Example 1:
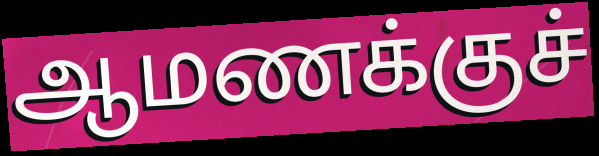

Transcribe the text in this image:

ஆமணக்குச்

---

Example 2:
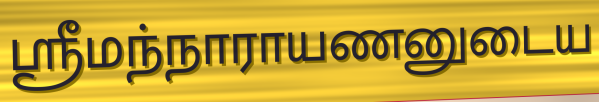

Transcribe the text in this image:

ஸ்ரீமந்நாராயணனுடைய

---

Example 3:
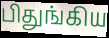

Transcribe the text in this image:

பிதுங்கிய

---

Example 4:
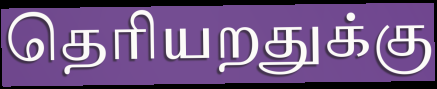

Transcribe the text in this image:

தெரியறதுக்கு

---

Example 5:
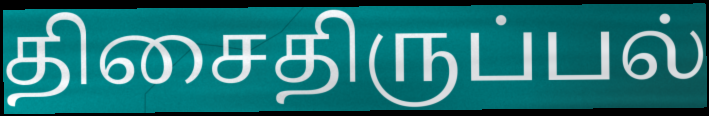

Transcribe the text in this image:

திசைதிருப்பல்